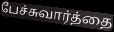
பேச்சுவார்த்தை